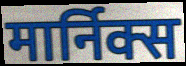
मार्निक्स